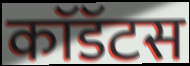
कॉडॅटस